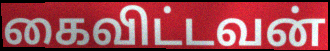
கைவிட்டவன்